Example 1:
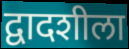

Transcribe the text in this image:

द्वादशीला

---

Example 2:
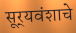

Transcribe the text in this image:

सूर्यवंशाचे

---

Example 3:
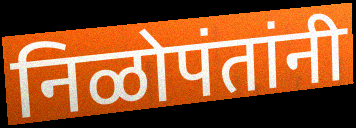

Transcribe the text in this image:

निळोपंतांनी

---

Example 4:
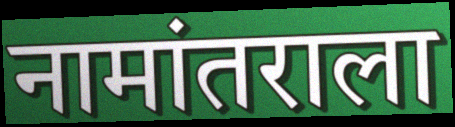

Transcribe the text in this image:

नामांतराला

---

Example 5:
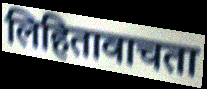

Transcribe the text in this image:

लिहितावाचता